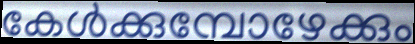
കേൾക്കുമ്പോഴേക്കും